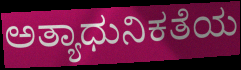
ಅತ್ಯಾಧುನಿಕತೆಯ